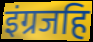
इंग्रजहि